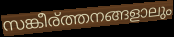
സങ്കീര്ത്തനങ്ങളാലും